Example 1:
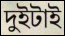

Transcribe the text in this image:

দুইটাই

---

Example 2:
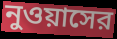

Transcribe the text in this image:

নুওয়াসের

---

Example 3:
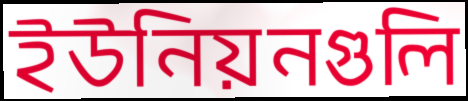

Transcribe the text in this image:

ইউনিয়নগুলি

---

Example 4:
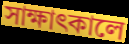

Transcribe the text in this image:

সাক্ষাৎকালে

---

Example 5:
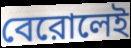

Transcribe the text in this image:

বেরোলেই